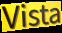
Vista